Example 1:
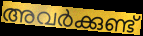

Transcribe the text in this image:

അവർക്കുണ്ട്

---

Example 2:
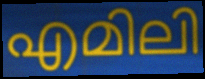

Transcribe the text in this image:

എമിലി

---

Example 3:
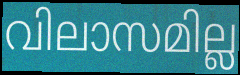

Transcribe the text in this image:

വിലാസമില്ല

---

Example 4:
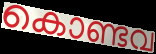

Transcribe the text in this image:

കൊണ്ടവ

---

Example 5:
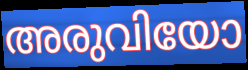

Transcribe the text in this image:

അരുവിയോ